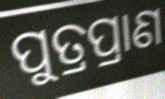
ପୁତ୍ରପ୍ରାଣ